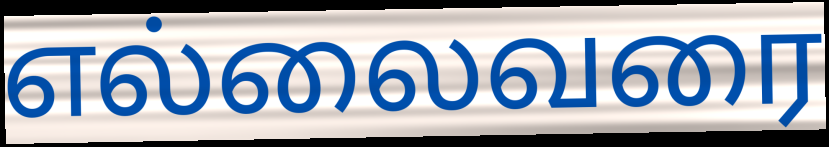
எல்லைவரை